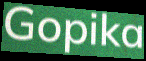
Gopika